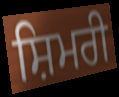
ਸ਼ਿਮਰੀ